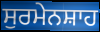
ਸੁਰਮੇਨਸ਼ਾਹ